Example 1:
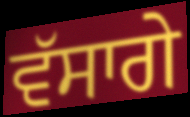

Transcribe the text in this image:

ਵੱਸਾਗੇ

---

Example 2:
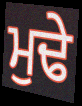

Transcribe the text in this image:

ਮੁਢੇ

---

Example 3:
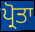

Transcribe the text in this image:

ਪ੍ਰੋਤਾ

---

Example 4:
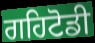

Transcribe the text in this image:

ਗਹਿਟੋਡੀ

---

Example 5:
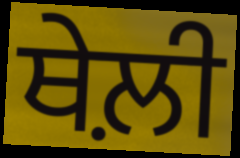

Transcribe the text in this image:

ਥੇਲ਼ੀ